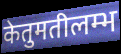
केतुमतीलम्भ